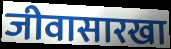
जीवासारखा